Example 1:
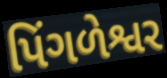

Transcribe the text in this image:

પિંગળેશ્વર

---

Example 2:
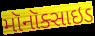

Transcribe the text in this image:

મૉનૉક્સાઇડ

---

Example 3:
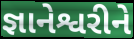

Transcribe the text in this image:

જ્ઞાનેશ્વરીને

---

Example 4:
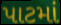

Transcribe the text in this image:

પાટમાં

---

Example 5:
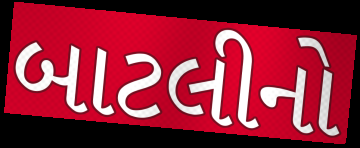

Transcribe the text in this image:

બાટલીનો